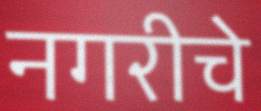
नगरीचे